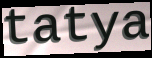
tatya